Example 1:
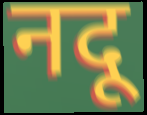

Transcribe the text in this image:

नदू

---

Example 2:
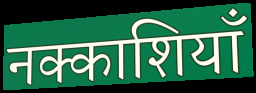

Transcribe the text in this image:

नक्काशियाँ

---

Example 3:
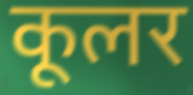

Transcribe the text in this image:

कूलर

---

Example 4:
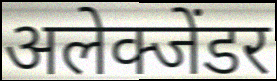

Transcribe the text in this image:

अलेक्जेंडर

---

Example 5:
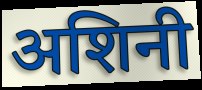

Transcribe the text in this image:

अशिनी